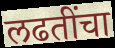
लढतींचा